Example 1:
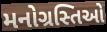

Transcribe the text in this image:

મનોગ્રસ્તિઓ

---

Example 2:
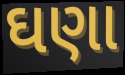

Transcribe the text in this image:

ઘણા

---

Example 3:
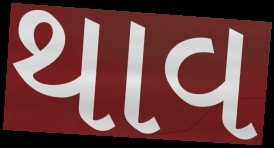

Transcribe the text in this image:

થાવ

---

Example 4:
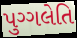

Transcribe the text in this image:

પુગ્ગલેતિ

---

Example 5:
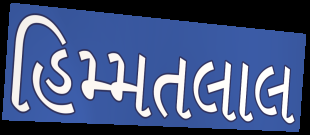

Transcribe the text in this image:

હિમ્મતલાલ